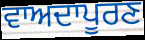
ਵਾਅਦਾਪੂਰਣ